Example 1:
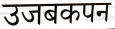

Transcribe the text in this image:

उजबकपन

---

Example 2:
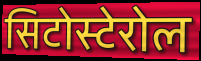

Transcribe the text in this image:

सिटोस्टेरोल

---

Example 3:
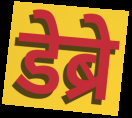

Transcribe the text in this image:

डेब्रे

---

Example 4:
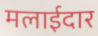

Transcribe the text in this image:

मलाईदार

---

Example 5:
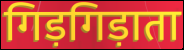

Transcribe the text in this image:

गिड़गिड़ाता